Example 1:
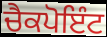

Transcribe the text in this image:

ਚੈਕਪੋਇੰਟ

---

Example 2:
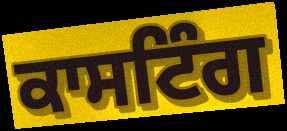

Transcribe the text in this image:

ਕਾਸਟਿੰਗ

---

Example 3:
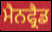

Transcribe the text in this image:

ਮੈਨਫ੍ਰੈਡ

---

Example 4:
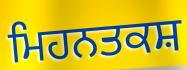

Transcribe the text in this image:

ਮਿਹਨਤਕਸ਼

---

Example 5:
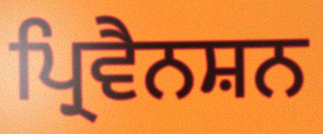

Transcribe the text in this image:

ਪ੍ਰਿਵੈਨਸ਼ਨ